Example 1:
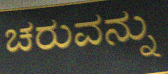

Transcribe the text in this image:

ಚರುವನ್ನು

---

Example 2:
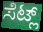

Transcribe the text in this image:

ಸೆಟ್ಲ್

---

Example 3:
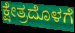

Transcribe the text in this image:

ಕ್ಷೇತ್ರದೊಳಗೆ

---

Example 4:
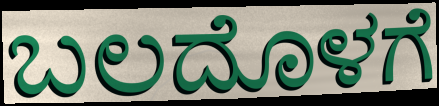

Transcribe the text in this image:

ಬಲದೊಳಗೆ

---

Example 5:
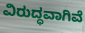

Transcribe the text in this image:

ವಿರುದ್ಧವಾಗಿವೆ